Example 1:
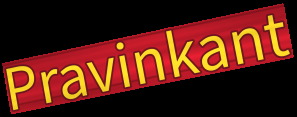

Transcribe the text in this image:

Pravinkant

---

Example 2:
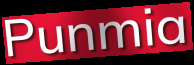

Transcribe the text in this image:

Punmia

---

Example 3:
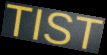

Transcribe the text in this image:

TIST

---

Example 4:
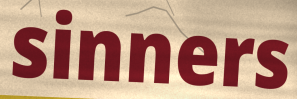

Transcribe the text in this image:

sinners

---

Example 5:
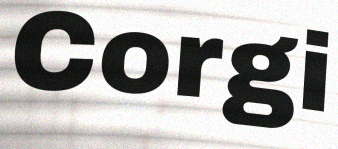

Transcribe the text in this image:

Corgi